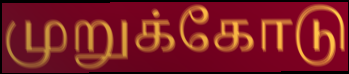
முறுக்கோடு